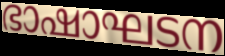
ഭാഷാഘടന